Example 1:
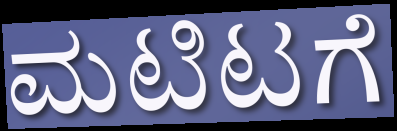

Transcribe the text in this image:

ಮಟಿಟಗೆ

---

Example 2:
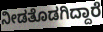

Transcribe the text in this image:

ನೀಡತೊಡಗಿದ್ದಾರೆ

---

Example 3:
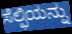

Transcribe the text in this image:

ಸೆಲ್ಫಿಯನ್ನು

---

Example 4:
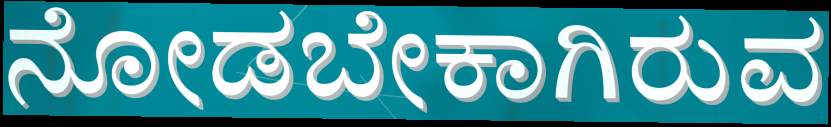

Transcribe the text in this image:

ನೋಡಬೇಕಾಗಿರುವ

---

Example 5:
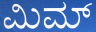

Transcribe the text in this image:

ಮಿಮ್